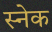
स्‍नेक